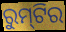
ରୁମ୍‌ଟିର